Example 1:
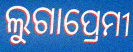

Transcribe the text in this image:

ଲୁଗାପ୍ରେମୀ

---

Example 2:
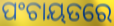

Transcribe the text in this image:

ପଂଚାୟତରେ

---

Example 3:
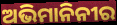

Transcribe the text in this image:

ଅଭିମାନିନୀର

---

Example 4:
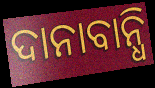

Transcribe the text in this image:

ଦାନାବାନ୍ଧି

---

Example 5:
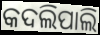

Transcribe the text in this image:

କଦଲିପାଲି